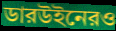
ডারউইনেরও